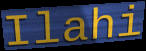
Ilahi